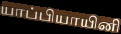
யாப்பியாயினி